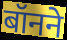
बॉनने